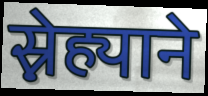
स्नेह्याने